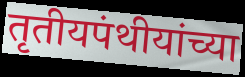
तृतीयपंथीयांच्या